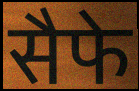
सैफे